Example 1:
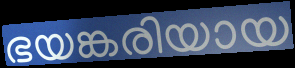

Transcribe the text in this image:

ഭയങ്കരിയായ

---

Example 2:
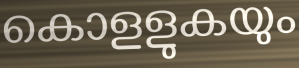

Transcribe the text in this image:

കൊളളുകയും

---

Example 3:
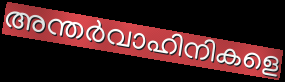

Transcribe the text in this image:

അന്തർവാഹിനികളെ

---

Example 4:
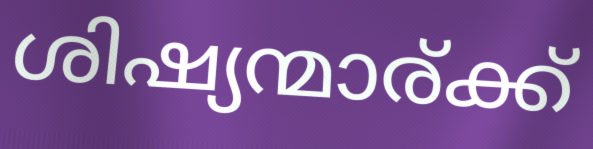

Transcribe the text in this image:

ശിഷ്യന്മാര്ക്ക്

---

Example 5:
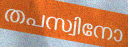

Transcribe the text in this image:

തപസ്വിനോ